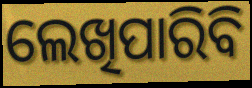
ଲେଖିପାରିବି